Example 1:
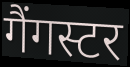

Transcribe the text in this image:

गैंगस्टर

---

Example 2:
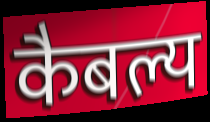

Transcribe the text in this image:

कैबल्य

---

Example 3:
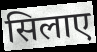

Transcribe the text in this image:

सिलाए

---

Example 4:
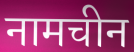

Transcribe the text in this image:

नामचीन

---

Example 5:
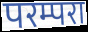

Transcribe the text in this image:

परम्परा